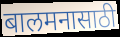
बालमनासाठी